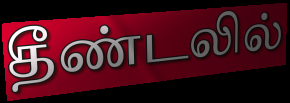
தீண்டலில்